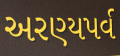
અરણ્યપર્વ